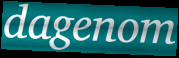
dagenom